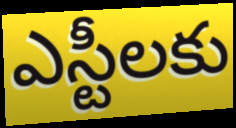
ఎస్టీలకు